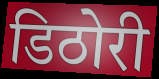
डिठोरी